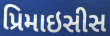
પ્રિમાઇસીસ